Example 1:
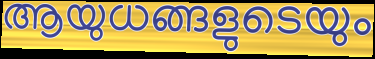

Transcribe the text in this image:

ആയുധങ്ങളുടെയും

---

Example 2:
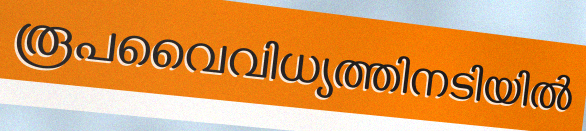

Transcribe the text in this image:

രൂപവൈവിധ്യത്തിനടിയിൽ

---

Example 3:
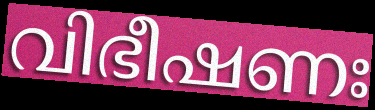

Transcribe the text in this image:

വിഭീഷണഃ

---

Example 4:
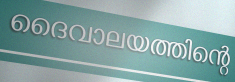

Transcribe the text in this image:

ദൈവാലയത്തിന്റെ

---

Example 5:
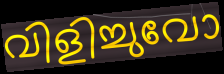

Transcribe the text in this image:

വിളിച്ചുവോ